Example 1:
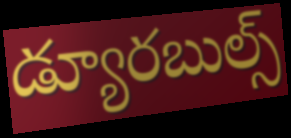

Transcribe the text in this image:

డ్యూరబుల్స్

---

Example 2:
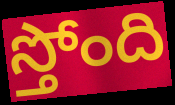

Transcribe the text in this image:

స్తోంది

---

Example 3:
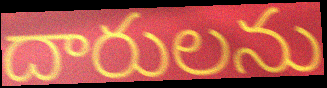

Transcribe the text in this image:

దారులను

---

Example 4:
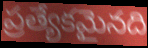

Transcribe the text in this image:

ప్రత్యేకమైనది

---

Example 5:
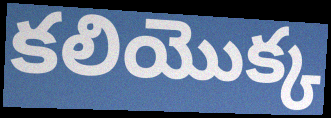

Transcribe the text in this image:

కలియొక్క